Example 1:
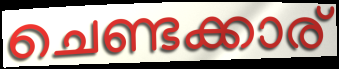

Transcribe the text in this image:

ചെണ്ടക്കാര്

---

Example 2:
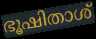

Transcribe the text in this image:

ഭൂഷിതാശ്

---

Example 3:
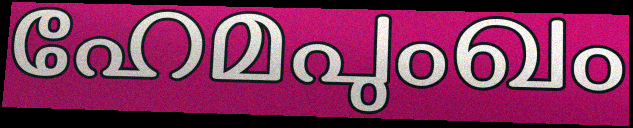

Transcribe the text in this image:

ഹേമപുംഖം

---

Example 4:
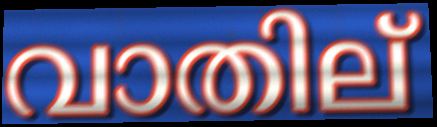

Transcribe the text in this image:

വാതില്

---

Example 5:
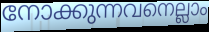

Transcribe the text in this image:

നോക്കുന്നവനെല്ലാം